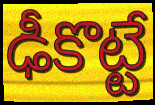
ఢీకొట్టే